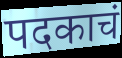
पदकाचं